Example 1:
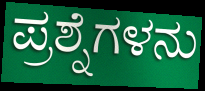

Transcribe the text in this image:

ಪ್ರಶ್ನೆಗಳನು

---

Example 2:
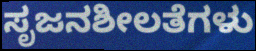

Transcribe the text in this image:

ಸೃಜನಶೀಲತೆಗಳು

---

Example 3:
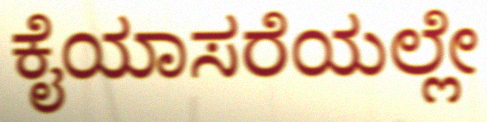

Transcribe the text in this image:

ಕೈಯಾಸರೆಯಲ್ಲೇ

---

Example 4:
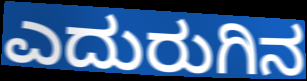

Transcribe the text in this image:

ಎದುರುಗಿನ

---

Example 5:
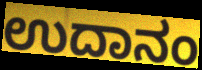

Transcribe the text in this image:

ಉದಾನಂ